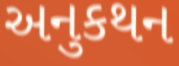
અનુકથન